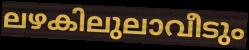
ലഴകിലുലാവീടും